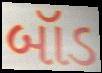
બૉડ